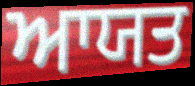
ਆਯਤ